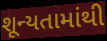
શૂન્યતામાંથી